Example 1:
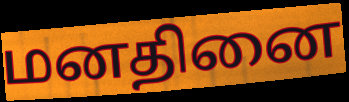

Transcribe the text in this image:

மனதினை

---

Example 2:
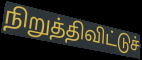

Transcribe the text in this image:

நிறுத்திவிட்டுச்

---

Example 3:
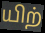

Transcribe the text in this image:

யிற்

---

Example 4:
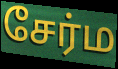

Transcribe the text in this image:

சேர்ம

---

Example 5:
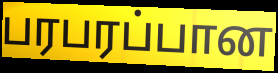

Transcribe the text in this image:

பரபரப்பான